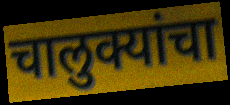
चालुक्यांचा